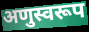
अणुस्वरूप